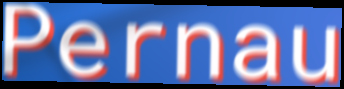
Pernau